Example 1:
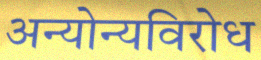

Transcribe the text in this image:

अन्योन्यविरोध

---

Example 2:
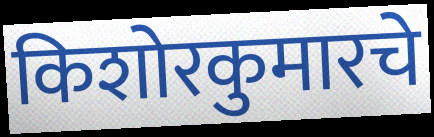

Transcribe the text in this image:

किशोरकुमारचे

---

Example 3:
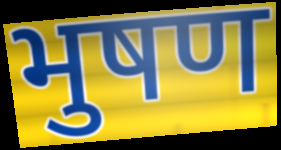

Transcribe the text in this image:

भुषण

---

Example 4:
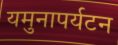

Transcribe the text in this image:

यमुनापर्यटन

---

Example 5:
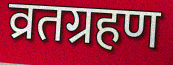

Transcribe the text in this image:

व्रतग्रहण